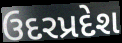
ઉદરપ્રદેશ